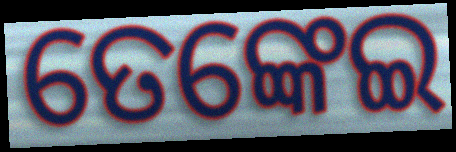
ତେଙ୍କେଇ